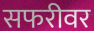
सफरीवर